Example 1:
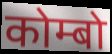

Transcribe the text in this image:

कोम्बो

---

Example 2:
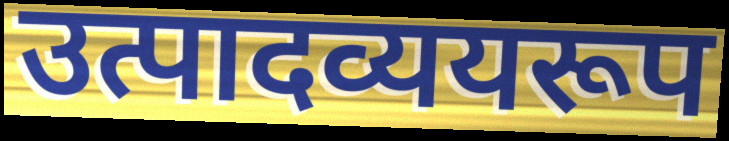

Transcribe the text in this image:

उत्पादव्ययरूप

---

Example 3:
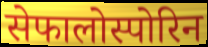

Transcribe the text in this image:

सेफालोस्पोरिन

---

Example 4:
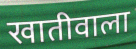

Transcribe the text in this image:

खातीवाला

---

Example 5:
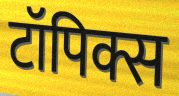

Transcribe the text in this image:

टॉपिक्स